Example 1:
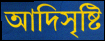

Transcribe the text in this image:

আদিসৃষ্টি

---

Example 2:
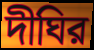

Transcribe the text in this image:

দীঘির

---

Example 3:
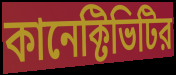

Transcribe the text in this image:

কানেক্টিভিটির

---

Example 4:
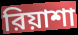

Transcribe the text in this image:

রিয়াশা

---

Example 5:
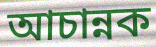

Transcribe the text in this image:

আচান্নক